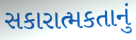
સકારાત્મકતાનું